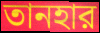
তানহার